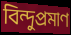
বিন্দুপ্রমাণ